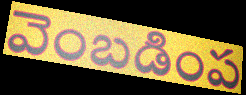
వెంబడింప